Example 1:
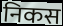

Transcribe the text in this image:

निकस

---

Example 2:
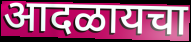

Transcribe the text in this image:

आदळायचा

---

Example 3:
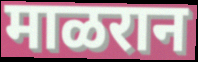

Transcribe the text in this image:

माळरान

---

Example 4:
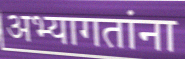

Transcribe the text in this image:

अभ्यागतांना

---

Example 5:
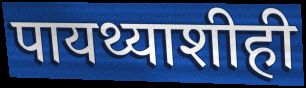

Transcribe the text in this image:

पायथ्याशीही